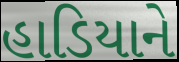
હાડિયાને